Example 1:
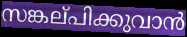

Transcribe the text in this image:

സങ്കല്‌പിക്കുവാൻ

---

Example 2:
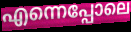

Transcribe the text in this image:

എന്നെപ്പോലെ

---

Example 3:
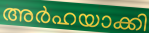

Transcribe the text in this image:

അർഹയാക്കി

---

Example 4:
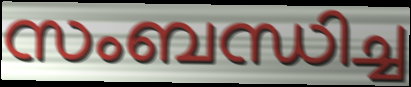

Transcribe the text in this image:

സംബന്ധിച്ച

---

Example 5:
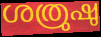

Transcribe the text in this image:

ശത്രുഷു